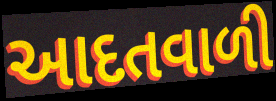
આદતવાળી